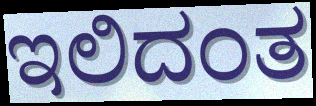
ಇಲಿದಂತ